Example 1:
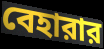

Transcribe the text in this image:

বেহারার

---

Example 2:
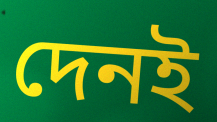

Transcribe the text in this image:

দেনই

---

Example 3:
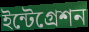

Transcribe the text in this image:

ইন্টেগ্রেশন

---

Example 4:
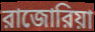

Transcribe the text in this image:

রাজোরিয়া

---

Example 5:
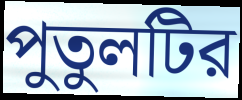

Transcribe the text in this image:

পুতুলটির